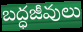
బద్ధజీవులు